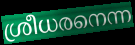
ശ്രീധരനെന്ന